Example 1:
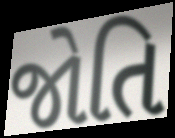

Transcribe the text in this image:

જોતિ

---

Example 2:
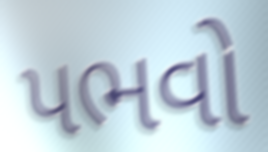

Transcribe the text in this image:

પભવો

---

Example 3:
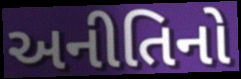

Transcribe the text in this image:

અનીતિનો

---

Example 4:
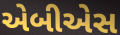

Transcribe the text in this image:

એબીએસ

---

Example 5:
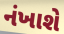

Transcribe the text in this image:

નંખાશે